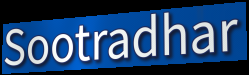
Sootradhar